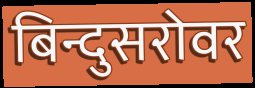
बिन्दुसरोवर